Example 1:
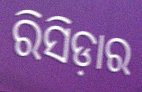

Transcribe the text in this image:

ରିସିଡ଼ାର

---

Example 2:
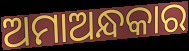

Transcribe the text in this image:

ଅମାଅନ୍ଧକାର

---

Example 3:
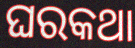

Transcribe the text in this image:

ଘରକଥା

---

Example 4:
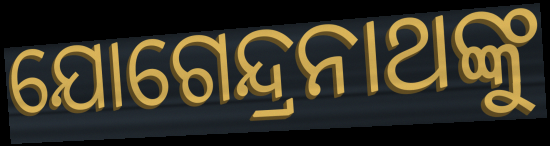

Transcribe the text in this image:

ଯୋଗେନ୍ଦ୍ରନାଥଙ୍କୁ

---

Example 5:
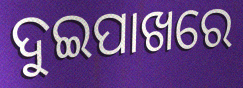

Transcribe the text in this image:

ଦୁଇପାଖରେ